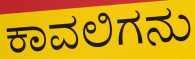
ಕಾವಲಿಗನು